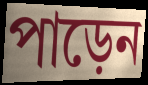
পাড়েন